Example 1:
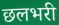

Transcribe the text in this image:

छलभरी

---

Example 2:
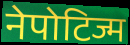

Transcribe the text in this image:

नेपोटिज्‍म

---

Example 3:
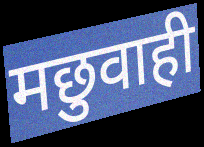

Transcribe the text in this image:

मछुवाही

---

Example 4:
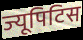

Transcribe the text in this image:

ज्यूपिटिस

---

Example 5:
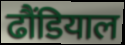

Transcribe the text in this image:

ढौंडियाल